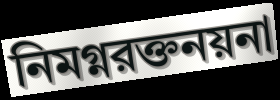
নিমগ্নরক্তনয়না